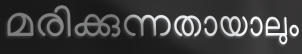
മരിക്കുന്നതായാലും